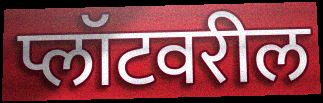
प्लॉटवरील